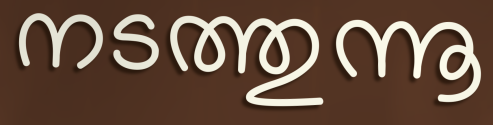
നടത്തുന്നൂ